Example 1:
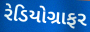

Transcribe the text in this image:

રેડિયોગ્રાફર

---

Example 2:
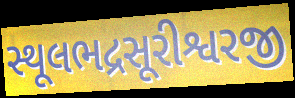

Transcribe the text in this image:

સ્થૂલભદ્રસૂરીશ્વરજી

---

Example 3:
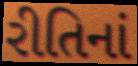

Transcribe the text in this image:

રીતિનાં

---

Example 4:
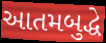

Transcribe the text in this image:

આતમબુદ્ધે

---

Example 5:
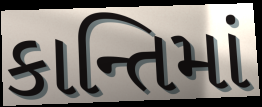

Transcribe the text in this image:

કાન્તિમાં